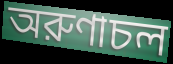
অৰুণাচল